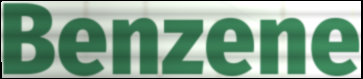
Benzene